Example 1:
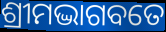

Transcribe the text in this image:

ଶ୍ରୀମଦ୍ଭାଗବତେ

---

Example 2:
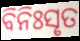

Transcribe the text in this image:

ବିନିଃସୃତ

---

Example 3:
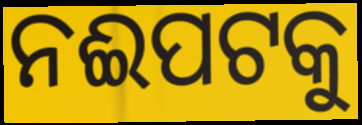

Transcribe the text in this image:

ନଈପଟକୁ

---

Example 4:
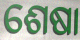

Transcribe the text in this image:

ଶେଷା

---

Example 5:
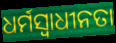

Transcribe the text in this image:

ଧର୍ମସ୍ୱାଧୀନତା